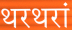
थरथरां